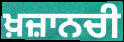
ਖ਼ਜ਼ਾਨਚੀ